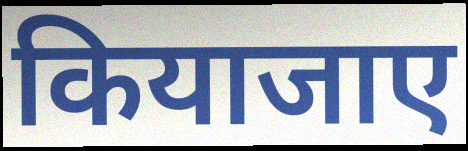
कियाजाए